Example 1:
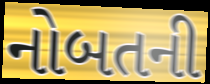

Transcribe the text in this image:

નોબતની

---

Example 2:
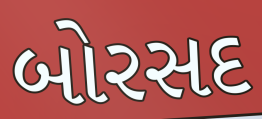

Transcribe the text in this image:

બોરસદ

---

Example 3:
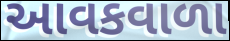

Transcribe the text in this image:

આવકવાળા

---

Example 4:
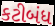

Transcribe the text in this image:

કટીબંધ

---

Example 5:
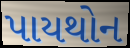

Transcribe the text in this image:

પાયથોન